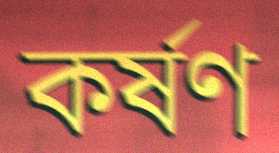
কৰ্ষণ